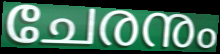
ചേരനും